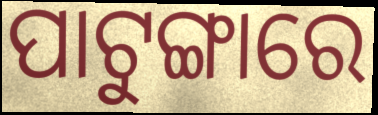
ପାଟୁଙ୍ଗାରେ